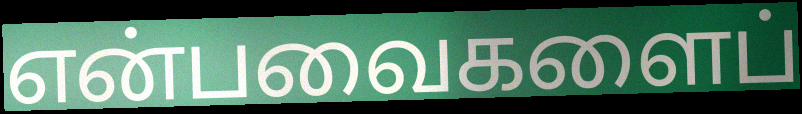
என்பவைகளைப்